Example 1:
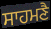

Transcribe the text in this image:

ਸਾਹਮਣੈ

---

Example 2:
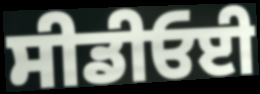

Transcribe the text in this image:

ਸੀਡੀਓਈ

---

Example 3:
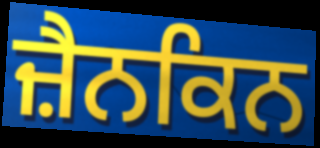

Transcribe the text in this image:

ਜ਼ੈਨਕਿਨ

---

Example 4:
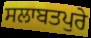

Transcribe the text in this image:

ਸਲਾਬਤਪੁਰੇ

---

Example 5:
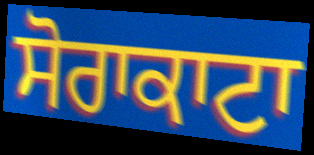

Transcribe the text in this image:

ਸੋਰਾਕਾਟਾ